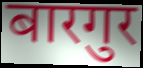
बारगुर